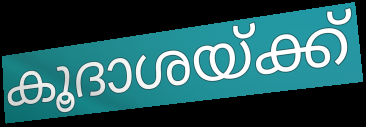
കൂദാശയ്ക്ക്